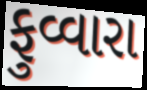
ફુવ્વારા